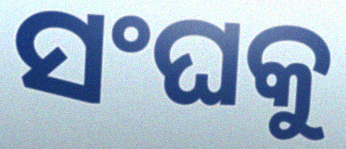
ସଂଘକୁ